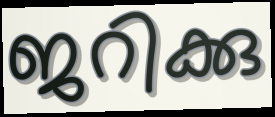
ജറിക്കു